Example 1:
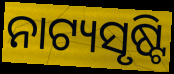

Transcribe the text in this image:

ନାଟ୍ୟସୃଷ୍ଟି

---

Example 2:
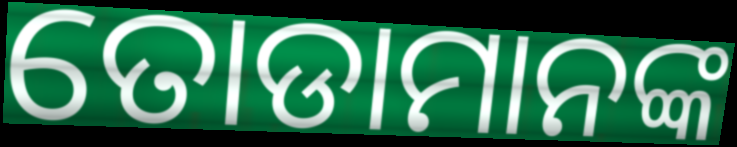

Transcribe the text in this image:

ତୋଡାମାନଙ୍କ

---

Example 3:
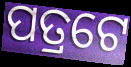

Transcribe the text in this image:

ପତ୍ରଟେ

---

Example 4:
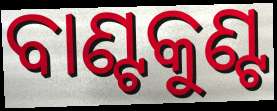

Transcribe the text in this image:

ବାଣ୍ଟକୁଣ୍ଟ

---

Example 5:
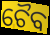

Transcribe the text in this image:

ଚୈବ